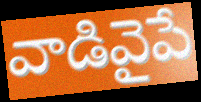
వాడివైపే